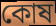
কোষ